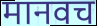
मानवच